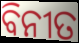
ବିନୀତ